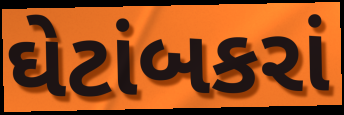
ઘેટાંબકરાં